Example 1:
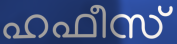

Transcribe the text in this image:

ഹഫീസ്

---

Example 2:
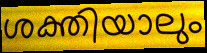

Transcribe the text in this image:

ശക്തിയാലും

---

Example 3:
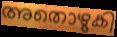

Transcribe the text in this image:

അതൊഴുകി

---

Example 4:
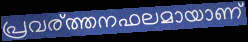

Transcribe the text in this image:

പ്രവര്ത്തനഫലമായാണ്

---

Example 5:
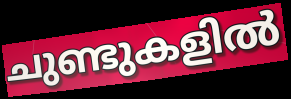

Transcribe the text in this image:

ചുണ്ടുകളിൽ